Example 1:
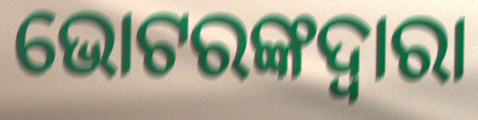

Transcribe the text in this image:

ଭୋଟରଙ୍କଦ୍ଵାରା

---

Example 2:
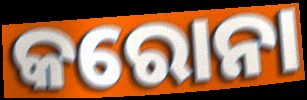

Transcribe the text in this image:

କରୋନା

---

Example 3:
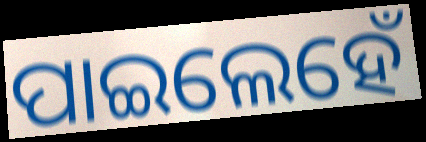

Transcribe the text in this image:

ପାଇଲେହେଁ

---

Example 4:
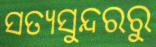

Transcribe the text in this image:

ସତ୍ୟସୁନ୍ଦରରୁ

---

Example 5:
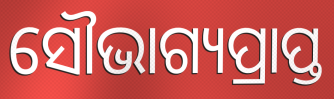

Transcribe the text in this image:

ସୌଭାଗ୍ୟପ୍ରାପ୍ତ